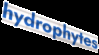
hydrophytes